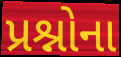
પ્રશ્નોના